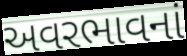
અવરભાવનાં